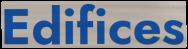
Edifices